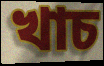
খাচ